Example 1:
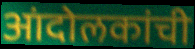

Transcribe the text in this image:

आंदोलकांची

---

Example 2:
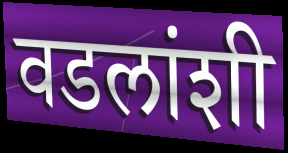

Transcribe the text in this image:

वडलांशी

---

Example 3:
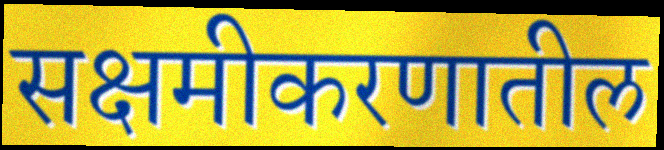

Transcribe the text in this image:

सक्षमीकरणातील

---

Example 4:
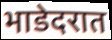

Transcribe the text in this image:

भाडेदरात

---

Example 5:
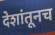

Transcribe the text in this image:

देशांतूनच